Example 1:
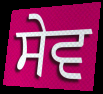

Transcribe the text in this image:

ਸੇਵ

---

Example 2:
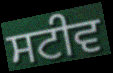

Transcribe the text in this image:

ਸਟੀਵ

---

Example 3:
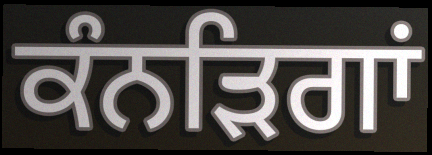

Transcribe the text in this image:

ਕੰਨੜਿਗਾਂ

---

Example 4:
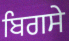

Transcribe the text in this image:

ਬਿਗਸੇ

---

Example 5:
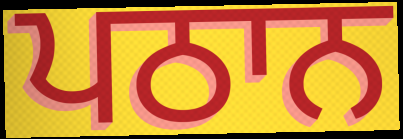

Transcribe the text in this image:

ਪਠਾਨ